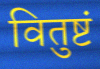
वितुष्टं